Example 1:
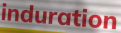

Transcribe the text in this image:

induration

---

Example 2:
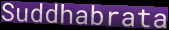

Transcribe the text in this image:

Suddhabrata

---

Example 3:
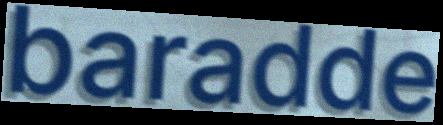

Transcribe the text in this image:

baradde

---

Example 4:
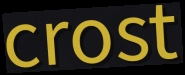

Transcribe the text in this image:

crost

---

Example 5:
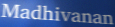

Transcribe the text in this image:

Madhivanan